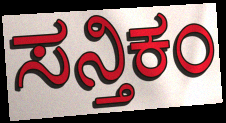
ಸನ್ತಿಕಂ